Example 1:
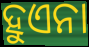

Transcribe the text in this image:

ହୁଏନା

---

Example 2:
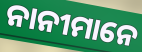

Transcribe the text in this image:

ନାନୀମାନେ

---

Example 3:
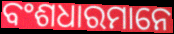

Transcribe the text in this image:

ବଂଶଧାରମାନେ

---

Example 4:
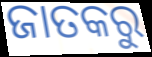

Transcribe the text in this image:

ଜାତକରୁ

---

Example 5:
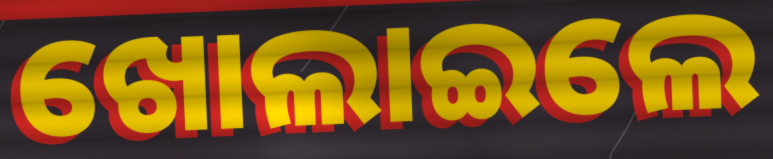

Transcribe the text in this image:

ଖୋଲାଇଲେ